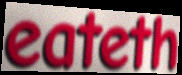
eateth